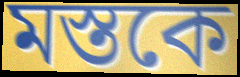
মস্তকে